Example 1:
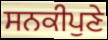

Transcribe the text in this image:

ਸਨਕੀਪੁਣੇ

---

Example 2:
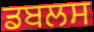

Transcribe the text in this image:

ਡਬਲਸ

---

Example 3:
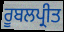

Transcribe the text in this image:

ਰੂਬਲਪ੍ਰੀਤ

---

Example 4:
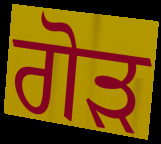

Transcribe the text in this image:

ਗੋੜ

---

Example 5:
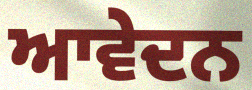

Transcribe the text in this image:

ਆਵੇਦਨ